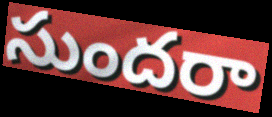
సుందరా